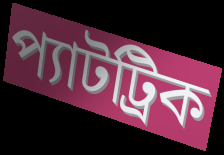
প্যাটট্রিক